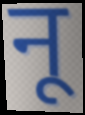
नू